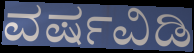
ವರ್ಷವಿಡಿ